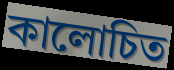
কালোচিত